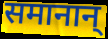
समानान्